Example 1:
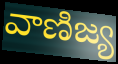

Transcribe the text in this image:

వాణిజ్య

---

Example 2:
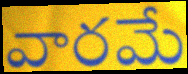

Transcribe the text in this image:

వారమే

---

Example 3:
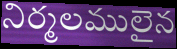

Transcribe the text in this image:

నిర్మలములైన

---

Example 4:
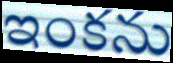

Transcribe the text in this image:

ఇంకను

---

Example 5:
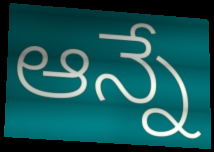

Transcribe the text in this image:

ఆన్నే